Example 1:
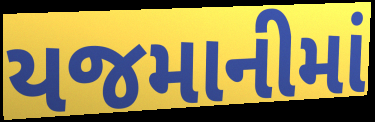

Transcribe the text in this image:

યજમાનીમાં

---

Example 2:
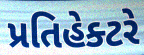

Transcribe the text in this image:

પ્રતિહેક્ટરે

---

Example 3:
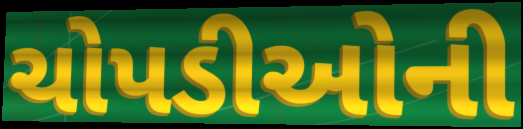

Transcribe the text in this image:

ચોપડીઓની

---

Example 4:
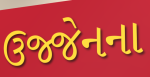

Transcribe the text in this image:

ઉજ્જેનના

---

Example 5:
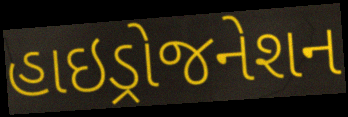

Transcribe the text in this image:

હાઇડ્રોજનેશન